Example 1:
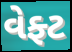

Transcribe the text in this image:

વેફ્ટ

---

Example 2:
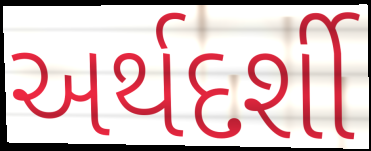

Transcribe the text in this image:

અર્થદર્શી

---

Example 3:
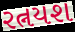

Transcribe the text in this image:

રત્નયશ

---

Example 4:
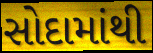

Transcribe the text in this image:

સોદામાંથી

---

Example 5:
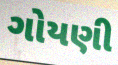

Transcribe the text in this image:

ગોયણી